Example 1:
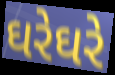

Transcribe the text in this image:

ઘરેઘરે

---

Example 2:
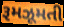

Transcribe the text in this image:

રૂમઝૂમતી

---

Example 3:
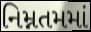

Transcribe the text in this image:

નિમ્નતમમાં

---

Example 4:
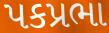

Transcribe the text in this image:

પકપ્રભા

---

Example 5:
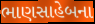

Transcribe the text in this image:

ભાણસાહેબના